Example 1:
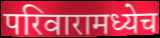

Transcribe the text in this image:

परिवारामध्येच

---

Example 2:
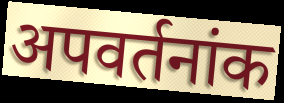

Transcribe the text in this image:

अपवर्तनांक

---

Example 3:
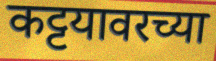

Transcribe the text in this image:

कट्टयावरच्या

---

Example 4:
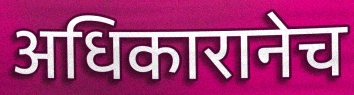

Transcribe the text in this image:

अधिकारानेच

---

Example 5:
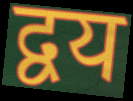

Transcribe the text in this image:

द्वय